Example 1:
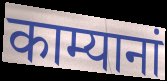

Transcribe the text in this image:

काम्यानां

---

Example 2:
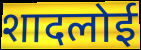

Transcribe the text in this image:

शादलोई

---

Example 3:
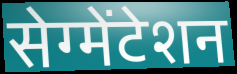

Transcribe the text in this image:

सेग्मेंटेशन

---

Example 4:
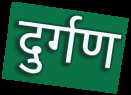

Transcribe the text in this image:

दुर्गण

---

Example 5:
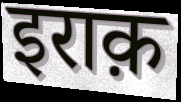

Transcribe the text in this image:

इराक़